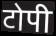
टोपी